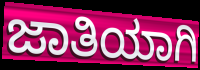
ಜಾತಿಯಾಗಿ